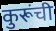
कुरूंची